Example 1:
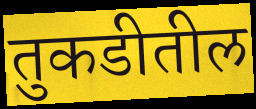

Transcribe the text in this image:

तुकडीतील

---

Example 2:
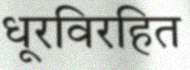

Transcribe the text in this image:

धूरविरहित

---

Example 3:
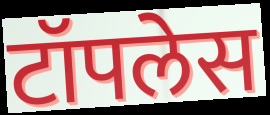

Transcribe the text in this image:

टॉपलेस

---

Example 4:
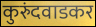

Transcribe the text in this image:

कुरुंदवाडकर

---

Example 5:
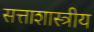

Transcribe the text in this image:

सत्ताशास्त्रीय